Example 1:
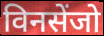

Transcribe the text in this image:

विनसेंजो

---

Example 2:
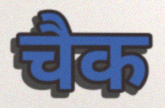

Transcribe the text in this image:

चैक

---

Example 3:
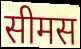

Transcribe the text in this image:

सीमस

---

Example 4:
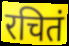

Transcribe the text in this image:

रचितं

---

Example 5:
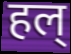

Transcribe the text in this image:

हल्